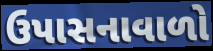
ઉપાસનાવાળો